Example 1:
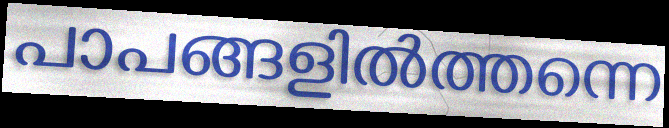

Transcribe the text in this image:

പാപങ്ങളിൽത്തന്നെ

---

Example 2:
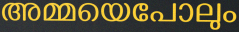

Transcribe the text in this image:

അമ്മയെപോലും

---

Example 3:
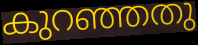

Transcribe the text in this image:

കുറഞ്ഞതു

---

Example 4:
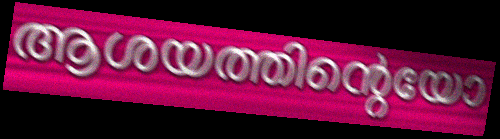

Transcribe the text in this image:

ആശയത്തിന്റെയോ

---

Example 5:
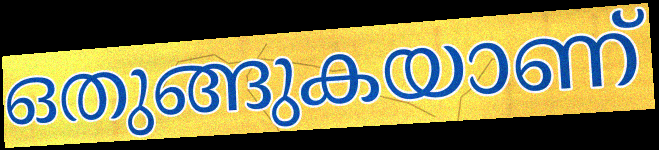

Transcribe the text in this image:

ഒതുങ്ങുകയാണ്